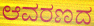
ಆವರಣದ